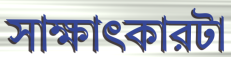
সাক্ষাৎকারটা